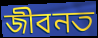
জীবনত